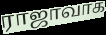
ராஜாவாக